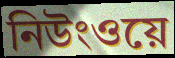
নিউংওয়ে